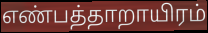
எண்பத்தாறாயிரம்